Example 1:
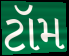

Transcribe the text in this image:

ટૉમ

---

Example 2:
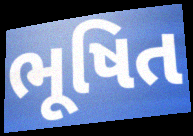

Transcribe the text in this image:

ભૂષિત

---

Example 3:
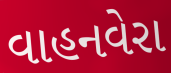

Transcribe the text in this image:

વાહનવેરા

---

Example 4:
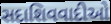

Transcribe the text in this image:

સદાશિવવાદીઓ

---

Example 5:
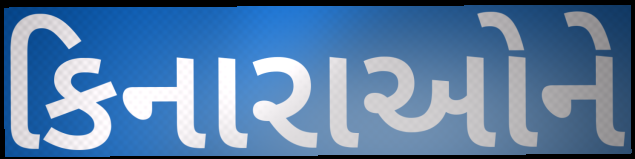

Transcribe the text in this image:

કિનારાઓને